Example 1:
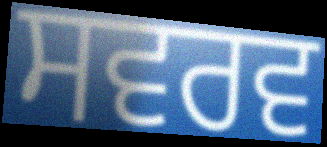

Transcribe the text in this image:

ਸਵਰਵ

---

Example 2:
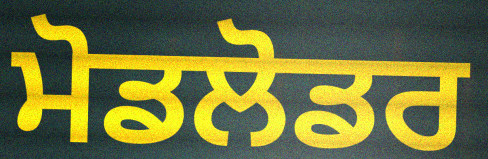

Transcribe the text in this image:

ਮੋਡਲੋਡਰ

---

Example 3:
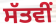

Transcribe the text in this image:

ਸੱਤਵੀਂ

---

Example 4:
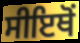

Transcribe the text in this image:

ਸੀਇਥੋਂ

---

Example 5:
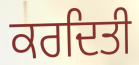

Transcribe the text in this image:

ਕਰਦਿਤੀ